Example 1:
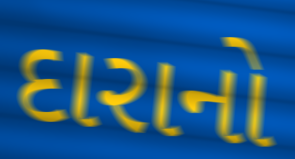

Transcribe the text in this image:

દારાનો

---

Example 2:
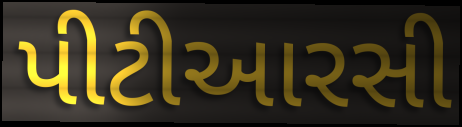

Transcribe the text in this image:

પીટીઆરસી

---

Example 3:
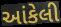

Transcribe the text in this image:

આંકેલી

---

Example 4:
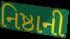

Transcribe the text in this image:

નિષ્ઠાની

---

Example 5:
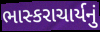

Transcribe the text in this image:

ભાસ્કરાચાર્યનું